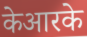
केआरके